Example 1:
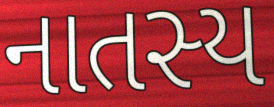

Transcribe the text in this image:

નાતસ્ય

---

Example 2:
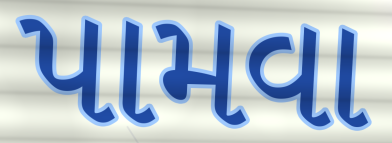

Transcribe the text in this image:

પામવા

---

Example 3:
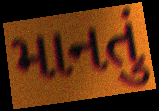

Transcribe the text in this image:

માનતું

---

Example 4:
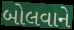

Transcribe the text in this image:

બોલવાને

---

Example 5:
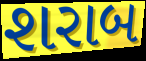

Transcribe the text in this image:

શરાબ